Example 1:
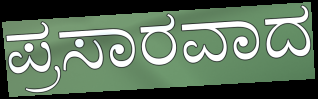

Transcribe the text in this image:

ಪ್ರಸಾರವಾದ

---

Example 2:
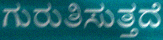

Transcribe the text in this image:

ಗುರುತಿಸುತ್ತದೆ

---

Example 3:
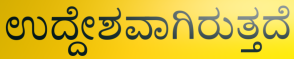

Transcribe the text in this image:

ಉದ್ದೇಶವಾಗಿರುತ್ತದೆ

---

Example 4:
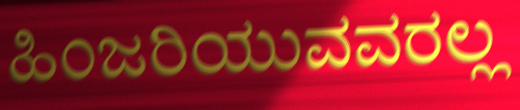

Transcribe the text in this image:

ಹಿಂಜರಿಯುವವರಲ್ಲ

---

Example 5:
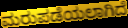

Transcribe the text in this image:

ಮರುಪಡೆಯಲಾಗಿದೆ